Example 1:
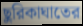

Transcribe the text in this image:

ছুরিকাঘাতের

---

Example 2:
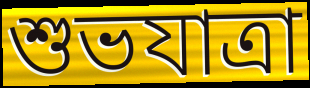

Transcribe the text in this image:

শুভযাত্রা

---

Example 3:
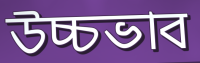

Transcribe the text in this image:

উচ্চভাব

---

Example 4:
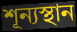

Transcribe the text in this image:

শূন্যস্থান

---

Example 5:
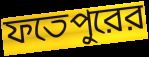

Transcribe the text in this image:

ফতেপুরের